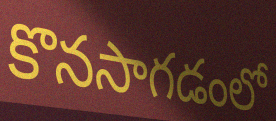
కొనసాగడంలో